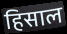
हिसाल